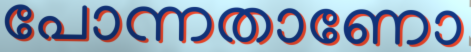
പോന്നതാണോ